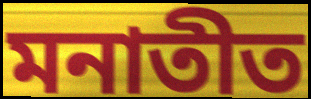
মনাতীত